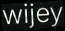
wijey